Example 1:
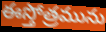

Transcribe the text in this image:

ఈస్తోత్రమును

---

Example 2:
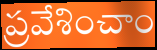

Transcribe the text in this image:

ప్రవేశించాం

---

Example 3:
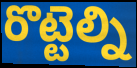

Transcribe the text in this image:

రొట్టెల్ని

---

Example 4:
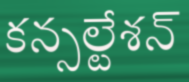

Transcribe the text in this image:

కన్సల్టేశన్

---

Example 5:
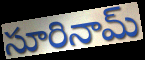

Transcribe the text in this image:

సూరినామ్